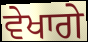
ਵੇਖਾਗੇ